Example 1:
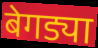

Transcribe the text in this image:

बेगड्या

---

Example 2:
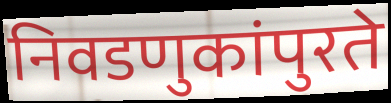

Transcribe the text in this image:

निवडणुकांपुरते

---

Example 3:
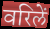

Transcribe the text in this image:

वरिलें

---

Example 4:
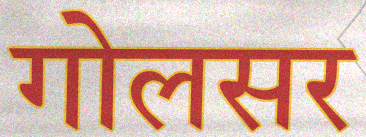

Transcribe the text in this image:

गोलसर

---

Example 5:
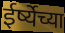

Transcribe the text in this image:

ईर्ष्येच्या